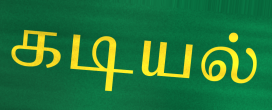
கடியல்